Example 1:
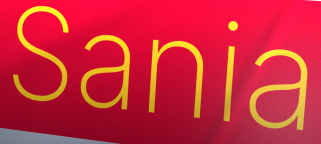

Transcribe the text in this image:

Sania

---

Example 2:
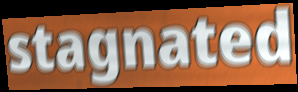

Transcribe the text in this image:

stagnated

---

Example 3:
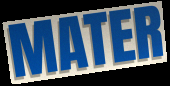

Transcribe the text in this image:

MATER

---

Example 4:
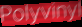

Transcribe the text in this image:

Polyvinyl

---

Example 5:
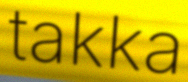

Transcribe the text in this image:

takka